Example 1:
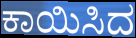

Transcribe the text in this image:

ಕಾಯಿಸಿದ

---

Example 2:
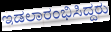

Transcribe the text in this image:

ಇಡಲಾರಂಭಿಸಿದ್ದರು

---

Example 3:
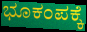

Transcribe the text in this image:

ಭೂಕಂಪಕ್ಕೆ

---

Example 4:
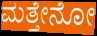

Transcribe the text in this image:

ಮತ್ತೇನೋ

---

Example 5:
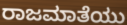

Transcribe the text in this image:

ರಾಜಮಾತೆಯು